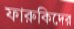
ফারুকিদের